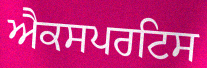
ਐਕਸਪਰਟਿਸ